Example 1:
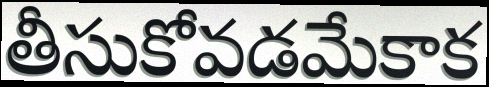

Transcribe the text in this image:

తీసుకోవడమేకాక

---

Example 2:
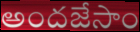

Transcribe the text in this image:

అందజేసాం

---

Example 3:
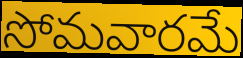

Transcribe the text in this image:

సోమవారమే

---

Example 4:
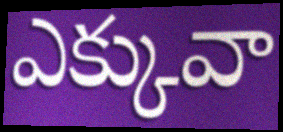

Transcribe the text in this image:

ఎక్కువా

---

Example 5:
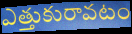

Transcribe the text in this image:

ఎత్తుకురావటం